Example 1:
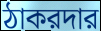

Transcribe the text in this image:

ঠাকরদার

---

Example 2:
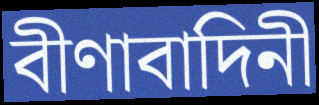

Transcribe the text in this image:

বীণাবাদিনী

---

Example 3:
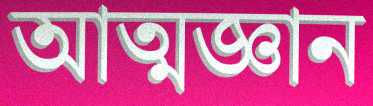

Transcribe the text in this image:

আত্মজ্ঞান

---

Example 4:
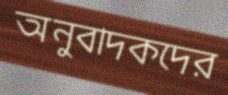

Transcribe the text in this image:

অনুবাদকদের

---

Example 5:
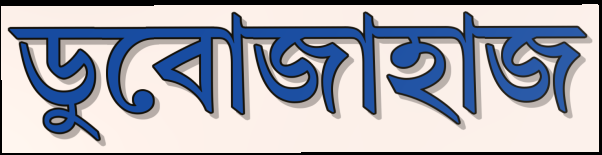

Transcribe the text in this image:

ডুবোজাহাজ